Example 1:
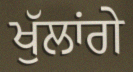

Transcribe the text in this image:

ਖੁੱਲਾਂਗੇ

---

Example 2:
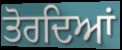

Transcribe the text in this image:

ਤੋਰਦਿਆਂ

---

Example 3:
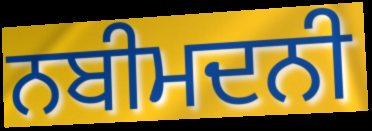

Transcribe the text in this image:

ਨਬੀਮਦਨੀ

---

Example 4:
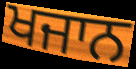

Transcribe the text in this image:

ਖਜਾਨ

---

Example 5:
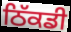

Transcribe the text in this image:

ਠਿੱਕਡੀ